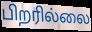
பிறரில்லை